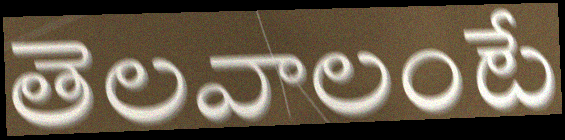
తెలవాలంటే